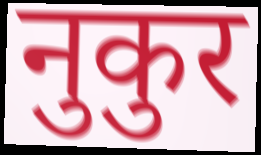
नुकुर